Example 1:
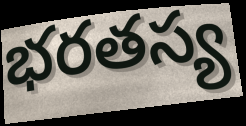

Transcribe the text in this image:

భరతస్య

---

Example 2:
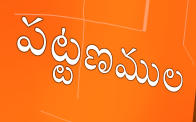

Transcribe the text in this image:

పట్టణముల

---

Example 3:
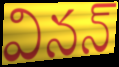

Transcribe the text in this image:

వినన్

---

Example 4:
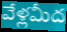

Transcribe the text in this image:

వేళ్లమీద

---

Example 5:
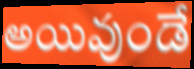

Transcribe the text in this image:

అయివుండే